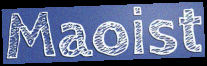
Maoist